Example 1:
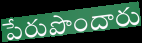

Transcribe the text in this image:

పేరుపొందారు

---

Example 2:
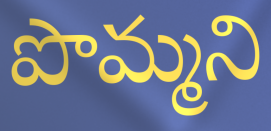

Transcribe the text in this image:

పొమ్మని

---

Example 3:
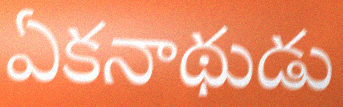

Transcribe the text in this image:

ఏకనాథుడు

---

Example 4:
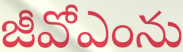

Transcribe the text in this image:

జీవోఎంను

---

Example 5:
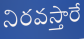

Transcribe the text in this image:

నిరవస్తారే